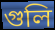
গুলি